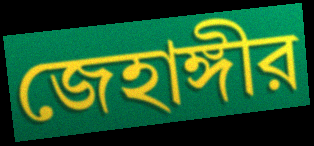
জেহাঙ্গীর